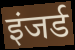
इंजर्ड